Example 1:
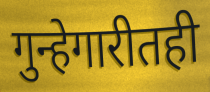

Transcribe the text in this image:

गुन्हेगारीतही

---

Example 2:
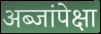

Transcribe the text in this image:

अब्जांपेक्षा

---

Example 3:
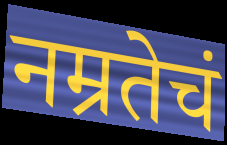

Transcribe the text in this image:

नम्रतेचं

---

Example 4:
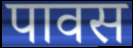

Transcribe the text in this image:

पावस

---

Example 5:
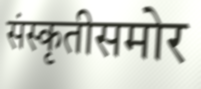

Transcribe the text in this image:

संस्कृतीसमोर